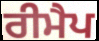
ਰੀਮੈਪ